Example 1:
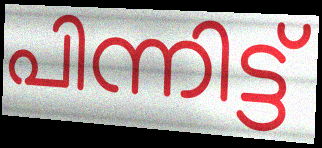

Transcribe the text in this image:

പിന്നിട്ട്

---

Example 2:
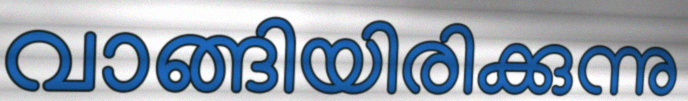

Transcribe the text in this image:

വാങ്ങിയിരിക്കുന്നു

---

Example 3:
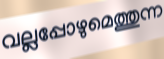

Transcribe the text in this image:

വല്ലപ്പോഴുമെത്തുന്ന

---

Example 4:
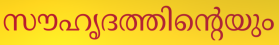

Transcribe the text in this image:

സൗഹൃദത്തിന്റെയും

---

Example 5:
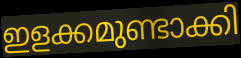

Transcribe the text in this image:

ഇളക്കമുണ്ടാക്കി